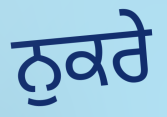
ਨੁਕਰੇ